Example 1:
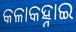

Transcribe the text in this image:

କଳାକହ୍ନାଇ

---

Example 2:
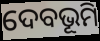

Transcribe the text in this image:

ଦେବଭୂମି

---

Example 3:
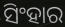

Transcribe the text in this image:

ସିଂହାର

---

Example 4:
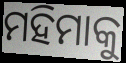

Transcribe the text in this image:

ମହିମାକୁ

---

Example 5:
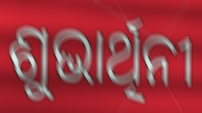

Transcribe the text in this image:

ଶୁଭାର୍ଥିନୀ